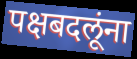
पक्षबदलूंना